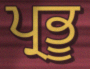
ਪ੍ਰ੍ਰਭੂ